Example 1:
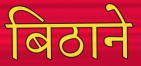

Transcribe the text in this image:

बिठाने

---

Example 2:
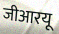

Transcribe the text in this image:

जीआरयू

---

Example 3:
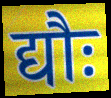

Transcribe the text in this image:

द्यौः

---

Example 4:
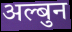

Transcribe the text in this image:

अल्बुन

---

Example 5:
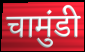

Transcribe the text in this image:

चामुंडी